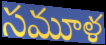
సమూళ